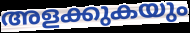
അളക്കുകയും